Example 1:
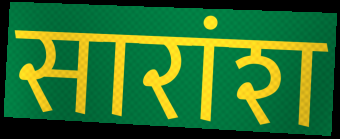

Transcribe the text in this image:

सारांश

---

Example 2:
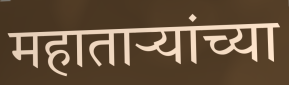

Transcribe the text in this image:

महाताऱ्यांच्या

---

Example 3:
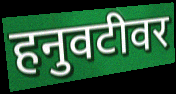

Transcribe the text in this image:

हनुवटीवर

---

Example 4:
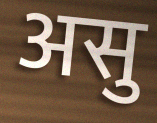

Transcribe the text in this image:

असु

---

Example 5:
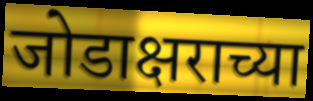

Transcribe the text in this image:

जोडाक्षराच्या